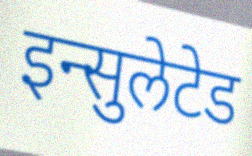
इन्सुलेटेड